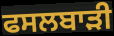
ਫਸਲਬਾੜੀ